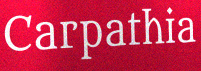
Carpathia